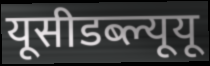
यूसीडब्ल्यूयू